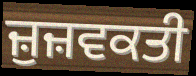
ਜ਼ੁਜ਼ਵਕਤੀ